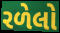
રળેલો